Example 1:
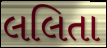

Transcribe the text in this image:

લલિતા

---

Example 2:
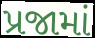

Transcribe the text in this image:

પ્રજામાં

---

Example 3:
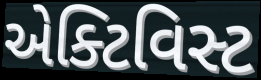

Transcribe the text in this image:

એક્ટિવિસ્ટ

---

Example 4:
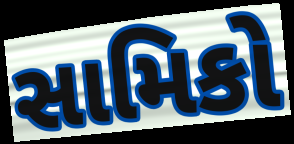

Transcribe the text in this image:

સામિકો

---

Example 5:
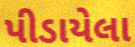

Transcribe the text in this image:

પીડાયેલા